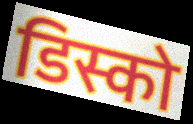
डिस्को